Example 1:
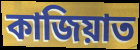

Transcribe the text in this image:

কাজিয়াত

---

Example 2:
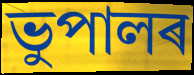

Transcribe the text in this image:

ভুপালৰ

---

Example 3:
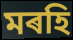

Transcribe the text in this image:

মৰহি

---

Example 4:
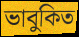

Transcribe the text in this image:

ভাবুকিত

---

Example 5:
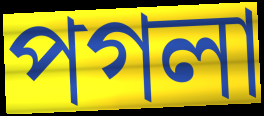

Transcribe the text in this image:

পগলা